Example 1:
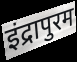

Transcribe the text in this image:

इंद्रापुरम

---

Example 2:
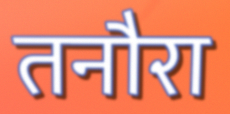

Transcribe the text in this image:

तनौरा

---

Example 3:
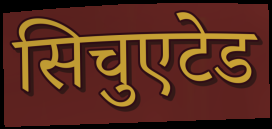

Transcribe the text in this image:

सिचुएटेड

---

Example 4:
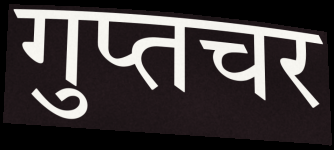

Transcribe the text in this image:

गुप्तचर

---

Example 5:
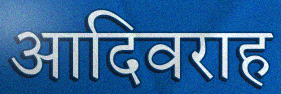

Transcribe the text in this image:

आदिवराह